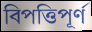
বিপত্তিপূর্ণ